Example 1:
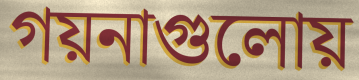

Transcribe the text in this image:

গয়নাগুলোয়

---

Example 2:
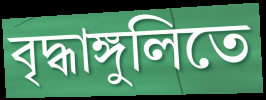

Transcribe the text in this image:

বৃদ্ধাঙ্গুলিতে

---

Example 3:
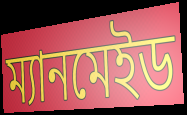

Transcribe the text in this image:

ম্যানমেইড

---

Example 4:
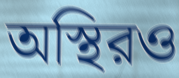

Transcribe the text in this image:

অস্থিরও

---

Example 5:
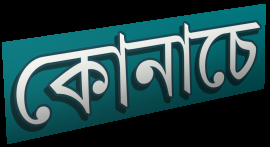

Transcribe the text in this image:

কোনাচে